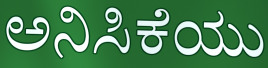
ಅನಿಸಿಕೆಯು